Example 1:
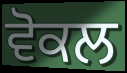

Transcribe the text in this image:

ਵੋਕਲ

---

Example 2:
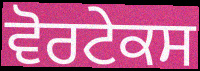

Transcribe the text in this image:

ਵੋਰਟੇਕਸ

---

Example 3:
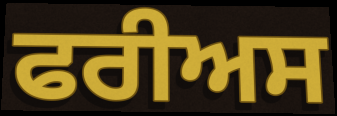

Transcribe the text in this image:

ਫਰੀਅਸ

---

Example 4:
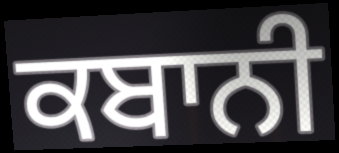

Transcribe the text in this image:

ਕਬਾਨੀ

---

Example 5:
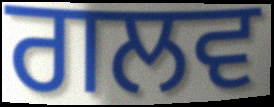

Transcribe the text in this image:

ਗਲਵ